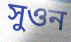
সুওন